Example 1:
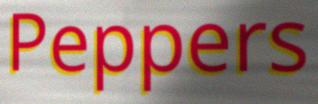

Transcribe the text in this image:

Peppers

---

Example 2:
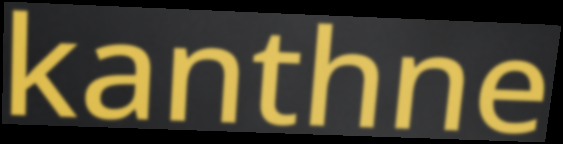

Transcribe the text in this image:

kanthne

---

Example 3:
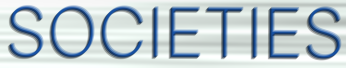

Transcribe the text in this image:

SOCIETIES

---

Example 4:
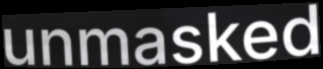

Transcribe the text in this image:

unmasked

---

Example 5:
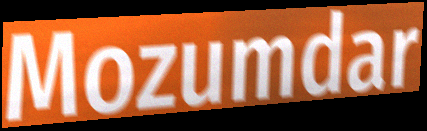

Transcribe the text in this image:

Mozumdar